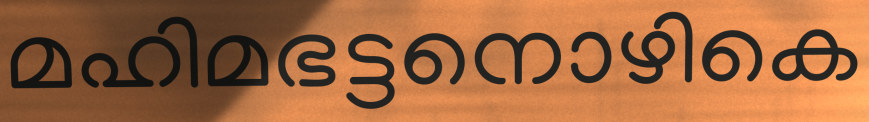
മഹിമഭട്ടനൊഴികെ